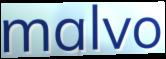
malvo